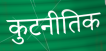
कुटनीतिक